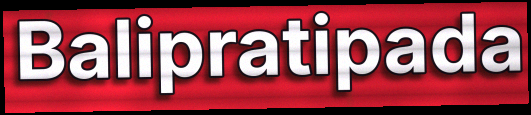
Balipratipada